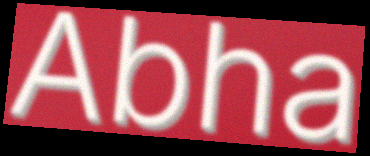
Abha